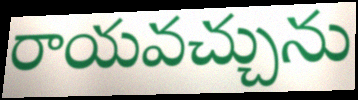
రాయవచ్చును